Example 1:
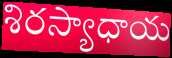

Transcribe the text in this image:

శిరస్యాధాయ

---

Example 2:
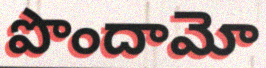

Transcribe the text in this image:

పొందామో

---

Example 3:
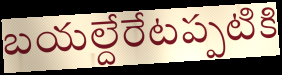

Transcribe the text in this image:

బయల్దేరేటప్పటికి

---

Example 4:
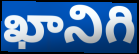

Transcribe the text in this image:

ఖానిగి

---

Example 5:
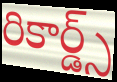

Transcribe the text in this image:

రికార్డ్స్